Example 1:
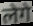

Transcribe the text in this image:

लेगे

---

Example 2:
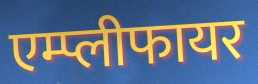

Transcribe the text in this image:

एम्प्लीफायर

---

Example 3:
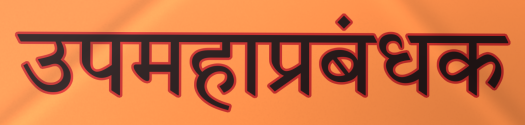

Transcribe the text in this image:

उपमहाप्रबंधक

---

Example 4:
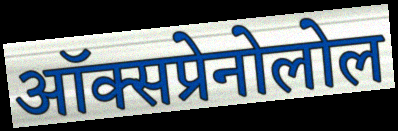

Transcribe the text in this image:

ऑक्सप्रेनोलोल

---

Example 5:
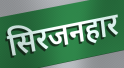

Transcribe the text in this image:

सिरजनहार